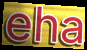
eha